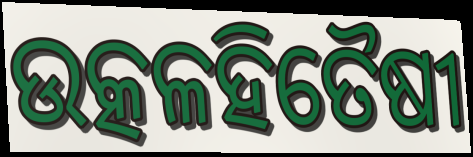
ଉତ୍କଳହିତୈଷୀ